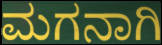
ಮಗನಾಗಿ